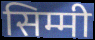
सिम्मी